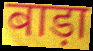
बाड़ा